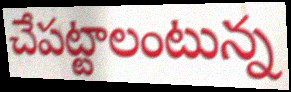
చేపట్టాలంటున్న